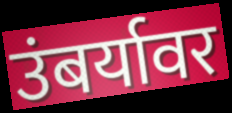
उंबर्यावर